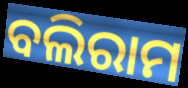
ବଲିରାମ